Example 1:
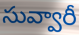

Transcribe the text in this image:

సువ్వారీ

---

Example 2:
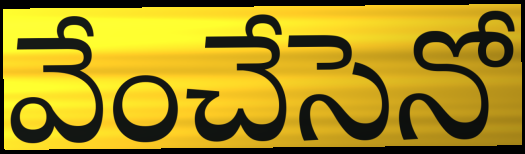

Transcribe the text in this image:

వేంచేసెనో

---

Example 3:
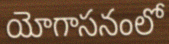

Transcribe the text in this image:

యోగాసనంలో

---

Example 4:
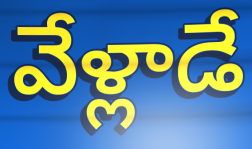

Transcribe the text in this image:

వేళ్లాడే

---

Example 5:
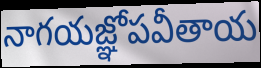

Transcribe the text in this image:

నాగయజ్ఞోపవీతాయ